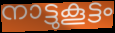
നാട്ടുകൂട്ടം